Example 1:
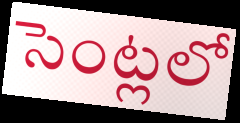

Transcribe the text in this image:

సెంట్లలో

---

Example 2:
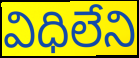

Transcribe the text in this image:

విధిలేని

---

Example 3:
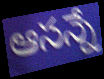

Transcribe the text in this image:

ఆసన్నే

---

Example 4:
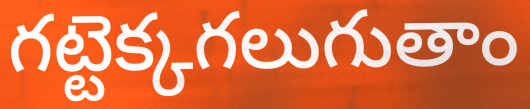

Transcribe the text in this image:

గట్టెక్కగలుగుతాం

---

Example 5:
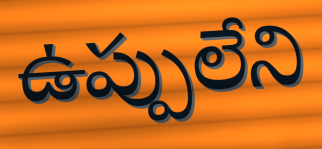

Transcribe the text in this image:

ఉప్పులేని